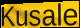
Kusale